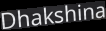
Dhakshina